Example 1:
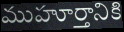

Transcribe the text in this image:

ముహూర్తానికి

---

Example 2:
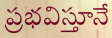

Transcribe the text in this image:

ప్రభవిస్తూనే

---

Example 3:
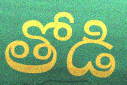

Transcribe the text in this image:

తోడి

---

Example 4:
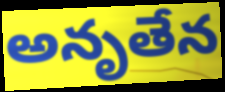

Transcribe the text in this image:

అనృతేన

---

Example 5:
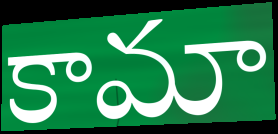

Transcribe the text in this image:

కామా